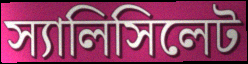
স্যালিসিলেট